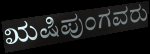
ಋಷಿಪುಂಗವರು